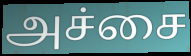
அச்சை